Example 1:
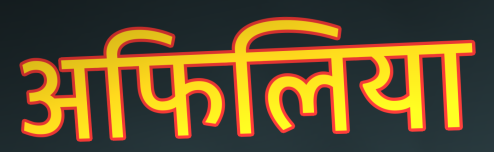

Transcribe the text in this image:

अफिलिया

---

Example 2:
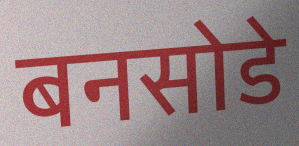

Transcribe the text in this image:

बनसोडे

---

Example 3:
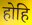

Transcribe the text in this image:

होहि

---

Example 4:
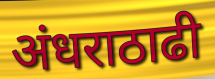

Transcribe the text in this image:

अंधराठाढी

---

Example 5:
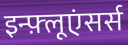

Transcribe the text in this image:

इन्फ़्लूएंसर्स